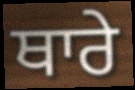
ਥਾਰੇ